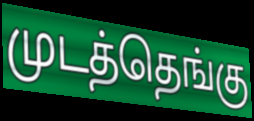
முடத்தெங்கு